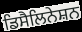
ਡਿਸੈਲਿਨੇਸ਼ਨ